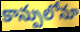
కాన్పులోనూ